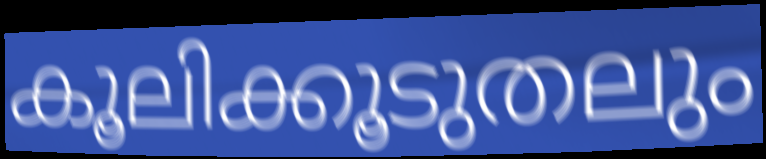
കൂലിക്കൂടുതലും